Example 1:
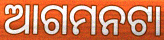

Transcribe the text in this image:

ଆଗମନଟା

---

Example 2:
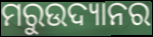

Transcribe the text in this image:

ମରୁଉଦ୍ୟାନର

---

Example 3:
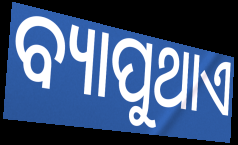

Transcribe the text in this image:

ବ୍ୟାପୁଥାଏ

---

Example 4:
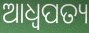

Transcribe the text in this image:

ଆଧ୍ଵପତ୍ୟ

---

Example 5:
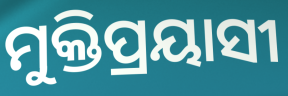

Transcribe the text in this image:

ମୁକ୍ତିପ୍ରୟାସୀ